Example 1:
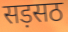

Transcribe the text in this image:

सड़सठ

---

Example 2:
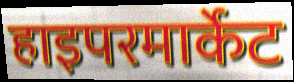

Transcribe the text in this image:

हाइपरमार्केट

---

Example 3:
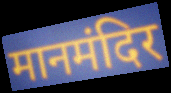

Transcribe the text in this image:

मानमंदिर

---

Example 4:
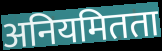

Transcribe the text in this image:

अनियमितता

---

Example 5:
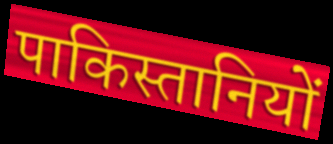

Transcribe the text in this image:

पाकिस्तानियों